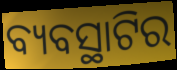
ବ୍ୟବସ୍ଥାଟିର